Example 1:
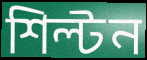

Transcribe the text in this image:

শিল্টন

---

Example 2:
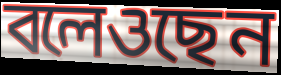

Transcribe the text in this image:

বলেওছেন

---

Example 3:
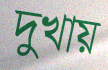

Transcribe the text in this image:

দুখায়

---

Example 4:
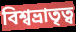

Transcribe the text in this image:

বিশ্বভ্রাতৃত্ব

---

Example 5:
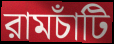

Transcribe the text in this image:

রামচাঁটি